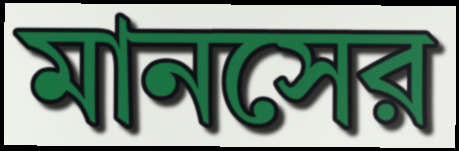
মানসের